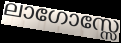
ലാഗോസ്സേ